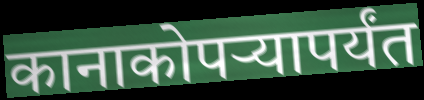
कानाकोपऱ्यापर्यंत